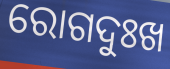
ରୋଗଦୁଃଖ